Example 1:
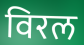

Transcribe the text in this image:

विरल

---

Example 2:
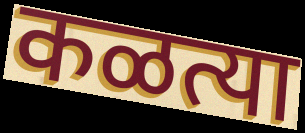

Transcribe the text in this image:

कळत्या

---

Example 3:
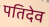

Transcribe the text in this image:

पतिदेव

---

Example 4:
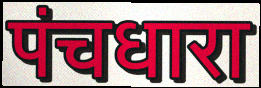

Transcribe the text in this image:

पंचधारा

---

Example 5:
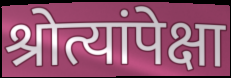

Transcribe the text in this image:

श्रोत्यांपेक्षा